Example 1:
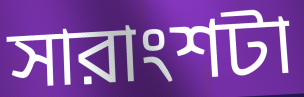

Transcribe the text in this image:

সারাংশটা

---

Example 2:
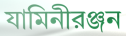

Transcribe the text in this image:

যামিনীরঞ্জন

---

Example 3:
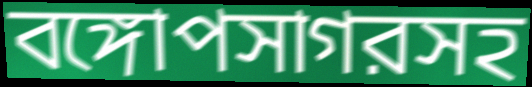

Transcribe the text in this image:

বঙ্গোপসাগরসহ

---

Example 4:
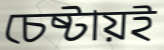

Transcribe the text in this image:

চেষ্টায়ই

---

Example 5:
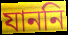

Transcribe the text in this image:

যাননি